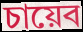
চায়েব